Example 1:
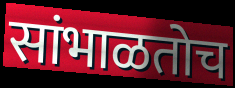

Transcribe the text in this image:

सांभाळतोच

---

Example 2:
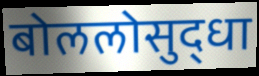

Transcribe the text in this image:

बोललोसुद्धा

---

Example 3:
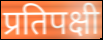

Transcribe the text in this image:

प्रतिपक्षी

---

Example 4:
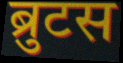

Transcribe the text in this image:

ब्रुटस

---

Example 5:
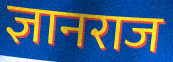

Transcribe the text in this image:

ज्ञानराज